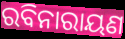
ରବିନାରାୟଣ